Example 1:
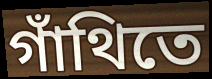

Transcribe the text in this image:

গাঁথিতে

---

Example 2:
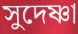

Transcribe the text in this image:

সুদেষ্ণা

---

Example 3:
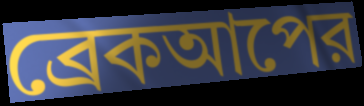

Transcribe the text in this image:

ব্রেকআপের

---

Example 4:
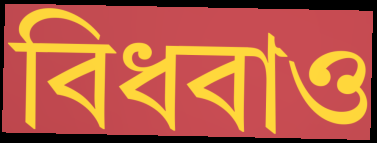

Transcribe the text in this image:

বিধবাও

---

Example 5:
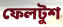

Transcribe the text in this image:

ফেলটুশ